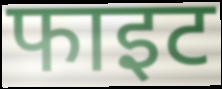
फाइट